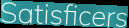
Satisficers